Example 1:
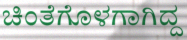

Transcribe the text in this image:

ಚಿಂತೆಗೊಳಗಾಗಿದ್ದ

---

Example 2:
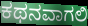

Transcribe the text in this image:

ಕಥನವಾಗಲಿ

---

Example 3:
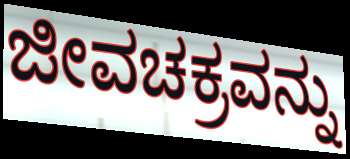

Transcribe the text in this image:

ಜೀವಚಕ್ರವನ್ನು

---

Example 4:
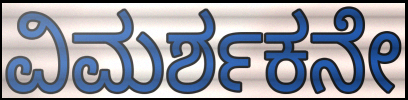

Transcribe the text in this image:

ವಿಮರ್ಶಕನೇ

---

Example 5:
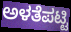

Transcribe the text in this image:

ಅಳತೆಪಟ್ಟಿ